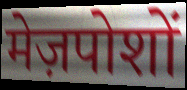
मेज़पोशों